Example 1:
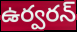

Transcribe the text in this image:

ఉర్వరన్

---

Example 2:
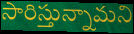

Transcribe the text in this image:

సారిస్తున్నామని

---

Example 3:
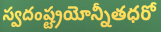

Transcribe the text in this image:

స్వదంష్ట్రయోన్నీతధరో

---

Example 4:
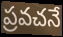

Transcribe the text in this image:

ప్రవచనే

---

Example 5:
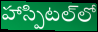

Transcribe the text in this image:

హాస్పిటల్‌లో